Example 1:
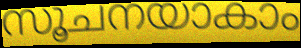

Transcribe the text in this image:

സൂചനയാകാം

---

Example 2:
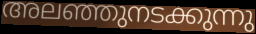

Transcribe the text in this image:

അലഞ്ഞുനടക്കുന്നു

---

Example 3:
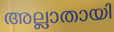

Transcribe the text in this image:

അല്ലാതായി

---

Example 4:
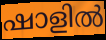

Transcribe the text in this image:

ഷാളിൽ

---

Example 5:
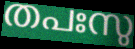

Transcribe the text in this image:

തപഃസു